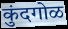
कुंदगोळ